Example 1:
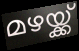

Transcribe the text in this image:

മഴയ്ക്ക്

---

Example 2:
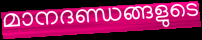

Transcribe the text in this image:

മാനദണ്ഡങ്ങളുടെ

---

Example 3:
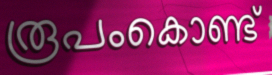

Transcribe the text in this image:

രൂപംകൊണ്ട്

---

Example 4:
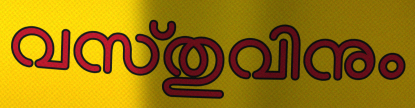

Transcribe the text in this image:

വസ്തുവിനും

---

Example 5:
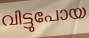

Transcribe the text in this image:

വിട്ടുപോയ